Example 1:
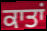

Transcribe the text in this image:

ਕਾਤਾਂ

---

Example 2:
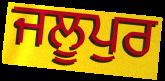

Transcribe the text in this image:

ਜਲੂਪੁਰ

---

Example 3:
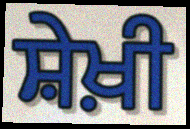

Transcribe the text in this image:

ਸ਼ੇਖ਼ੀ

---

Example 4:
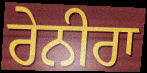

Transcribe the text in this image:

ਰੇਨੀਰਾ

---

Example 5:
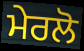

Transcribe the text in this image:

ਮੇਰਲੋ